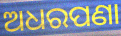
ଅଧରପଣା